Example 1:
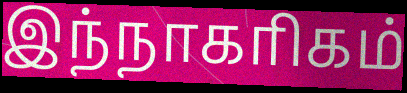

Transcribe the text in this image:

இந்நாகரிகம்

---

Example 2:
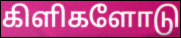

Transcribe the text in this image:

கிளிகளோடு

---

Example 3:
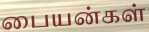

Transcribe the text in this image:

பையன்கள்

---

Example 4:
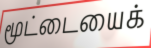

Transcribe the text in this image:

மூட்டையைக்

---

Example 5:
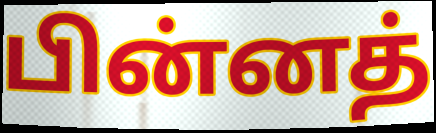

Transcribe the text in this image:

பின்னத்